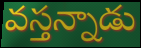
వస్తన్నాడు